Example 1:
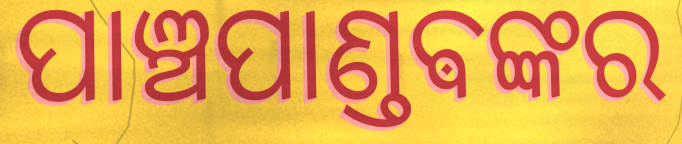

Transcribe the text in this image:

ପାଞ୍ଚପାଣ୍ଡଵଙ୍କର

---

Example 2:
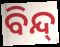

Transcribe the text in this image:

ବିନ୍ଦ୍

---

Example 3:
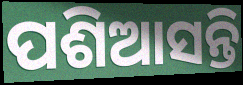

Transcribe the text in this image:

ପଶିଆସନ୍ତି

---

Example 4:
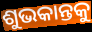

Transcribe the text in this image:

ଶୁଭକାନ୍ତକୁ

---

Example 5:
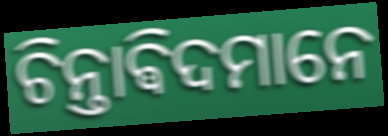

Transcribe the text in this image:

ଚିନ୍ତାଵିଦମାନେ